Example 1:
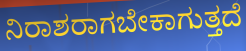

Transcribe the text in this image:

ನಿರಾಶರಾಗಬೇಕಾಗುತ್ತದೆ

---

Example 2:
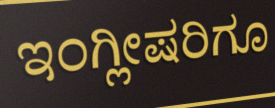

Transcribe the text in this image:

ಇಂಗ್ಲೀಷರಿಗೂ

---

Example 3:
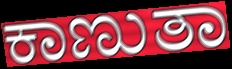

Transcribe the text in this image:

ಕಾಣುತಾ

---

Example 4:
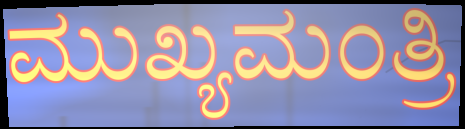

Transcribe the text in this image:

ಮುಖ್ಯಮಂತ್ರಿ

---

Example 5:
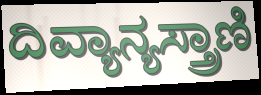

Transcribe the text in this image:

ದಿವ್ಯಾನ್ಯಸ್ತ್ರಾಣಿ